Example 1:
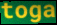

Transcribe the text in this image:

toga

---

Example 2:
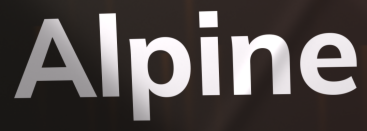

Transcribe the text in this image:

Alpine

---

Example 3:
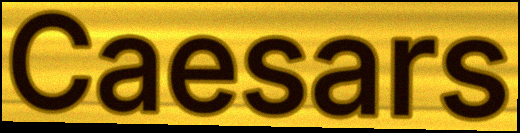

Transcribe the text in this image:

Caesars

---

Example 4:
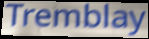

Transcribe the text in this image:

Tremblay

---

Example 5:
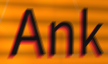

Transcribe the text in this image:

Ank